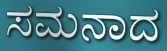
ಸಮನಾದ